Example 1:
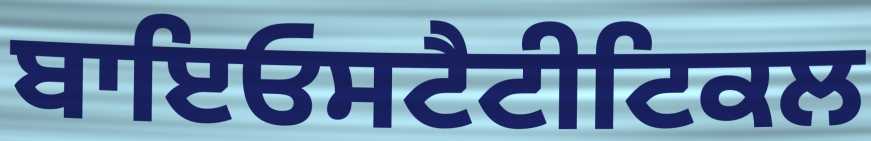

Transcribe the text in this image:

ਬਾਇਓਸਟੈਟੀਟਿਕਲ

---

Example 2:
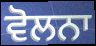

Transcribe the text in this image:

ਵੋਲਨਾ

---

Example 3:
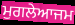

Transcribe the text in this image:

ਮੁਗਲੇਆਜਮ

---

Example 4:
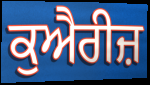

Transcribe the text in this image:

ਕੁਐਰੀਜ਼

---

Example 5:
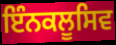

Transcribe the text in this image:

ਇੰਨਕਲੂਸਿਵ